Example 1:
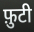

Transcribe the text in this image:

फ़ुटी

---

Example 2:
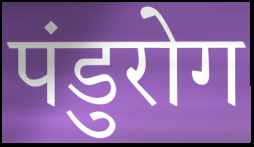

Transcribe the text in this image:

पंडुरोग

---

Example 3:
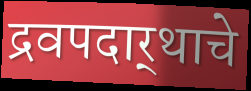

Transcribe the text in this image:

द्रवपदार्थाचे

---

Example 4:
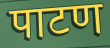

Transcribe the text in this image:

पाटण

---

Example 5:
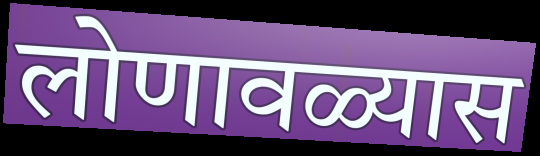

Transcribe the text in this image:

लोणावळ्यास